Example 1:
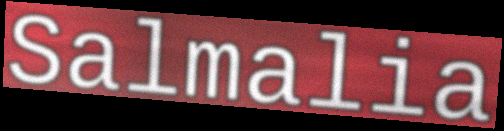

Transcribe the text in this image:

Salmalia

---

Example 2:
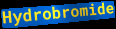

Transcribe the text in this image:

Hydrobromide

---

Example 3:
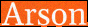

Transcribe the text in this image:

Arson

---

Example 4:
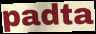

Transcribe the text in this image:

padta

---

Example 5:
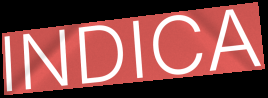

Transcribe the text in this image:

INDICA